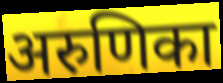
अरुणिका